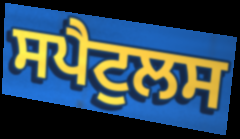
ਸਪੈਟੁਲਸ